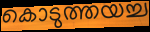
കൊടുത്തയച്ച